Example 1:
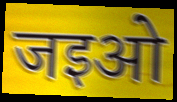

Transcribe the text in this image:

जइओ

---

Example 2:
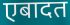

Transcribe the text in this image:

एबादत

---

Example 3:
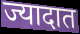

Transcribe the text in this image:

ज्यादात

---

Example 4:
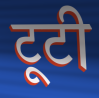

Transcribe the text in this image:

टूटी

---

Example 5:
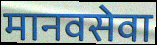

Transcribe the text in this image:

मानवसेवा